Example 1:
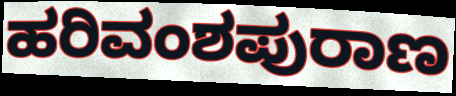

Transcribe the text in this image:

ಹರಿವಂಶಪುರಾಣ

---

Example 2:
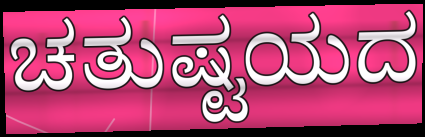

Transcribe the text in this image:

ಚತುಷ್ಟಯದ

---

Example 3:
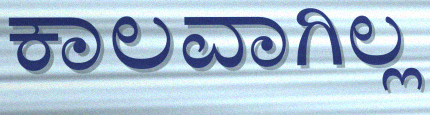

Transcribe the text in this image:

ಕಾಲವಾಗಿಲ್ಲ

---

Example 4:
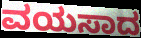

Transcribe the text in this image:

ವಯಸಾದ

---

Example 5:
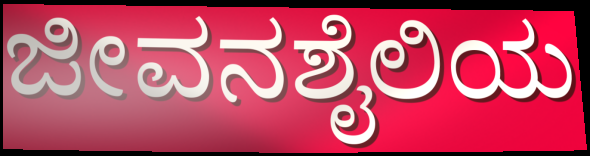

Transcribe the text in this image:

ಜೀವನಶೈಲಿಯ